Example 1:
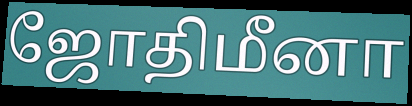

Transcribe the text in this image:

ஜோதிமீனா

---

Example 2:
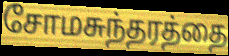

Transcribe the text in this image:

சோமசுந்தரத்தை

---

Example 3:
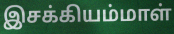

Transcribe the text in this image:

இசக்கியம்மாள்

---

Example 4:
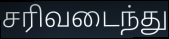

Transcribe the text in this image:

சரிவடைந்து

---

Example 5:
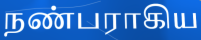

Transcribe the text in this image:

நண்பராகிய